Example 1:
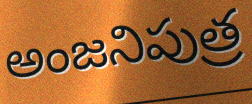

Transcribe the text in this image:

అంజనిపుత్ర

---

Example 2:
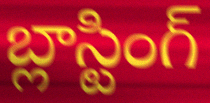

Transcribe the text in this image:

బ్లాస్టింగ్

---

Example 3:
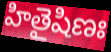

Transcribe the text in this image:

హితైషిణః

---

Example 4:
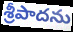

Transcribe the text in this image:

శ్రీపాదను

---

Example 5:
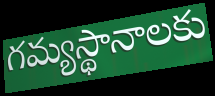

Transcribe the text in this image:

గమ్యస్థానాలకు